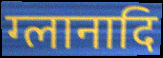
ग्लानादि